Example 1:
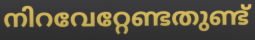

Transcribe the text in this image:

നിറവേറ്റേണ്ടതുണ്ട്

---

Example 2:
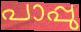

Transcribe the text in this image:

പാപ്പു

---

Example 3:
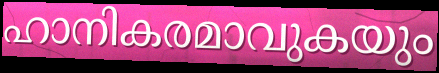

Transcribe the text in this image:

ഹാനികരമാവുകയും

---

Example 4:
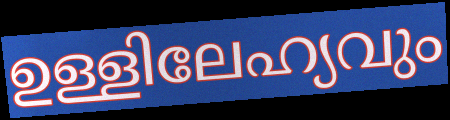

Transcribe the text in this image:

ഉള്ളിലേഹ്യവും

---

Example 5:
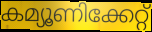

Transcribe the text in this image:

കമ്യൂണിക്കേറ്റ്